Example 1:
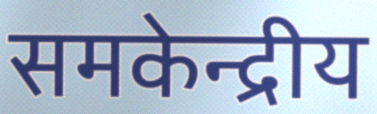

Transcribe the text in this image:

समकेन्द्रीय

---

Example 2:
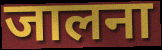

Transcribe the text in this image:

जालना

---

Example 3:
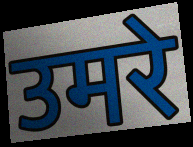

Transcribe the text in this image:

उमरे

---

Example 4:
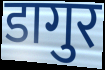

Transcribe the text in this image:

डागुर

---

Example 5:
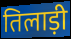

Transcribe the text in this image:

तिलाड़ी